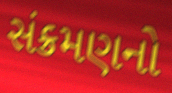
સંક્રમણનો